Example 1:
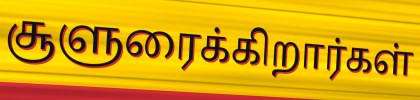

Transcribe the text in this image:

சூளுரைக்கிறார்கள்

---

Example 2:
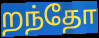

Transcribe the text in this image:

றந்தோ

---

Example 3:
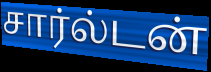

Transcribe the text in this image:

சார்ல்டன்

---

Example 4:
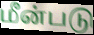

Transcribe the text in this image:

மீன்படு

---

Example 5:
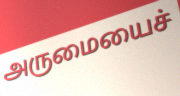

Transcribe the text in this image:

அருமையைச்